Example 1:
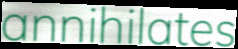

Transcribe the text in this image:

annihilates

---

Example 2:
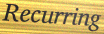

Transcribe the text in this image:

Recurring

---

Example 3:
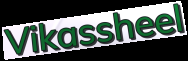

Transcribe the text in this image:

Vikassheel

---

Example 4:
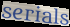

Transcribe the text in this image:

serials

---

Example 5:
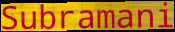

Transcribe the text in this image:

Subramani